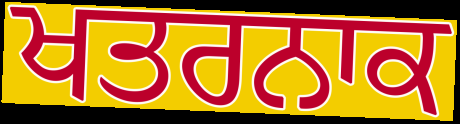
ਖਤਰਨਾਕ